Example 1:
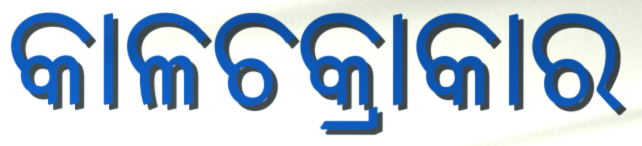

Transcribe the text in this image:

କାଳଚକ୍ରାକାର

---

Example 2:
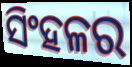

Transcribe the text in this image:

ସିଂହଳର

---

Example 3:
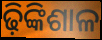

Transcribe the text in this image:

ଢ଼ିଙ୍କିଶାଳ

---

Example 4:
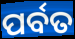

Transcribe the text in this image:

ପର୍ବତ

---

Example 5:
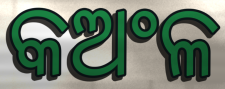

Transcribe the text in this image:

କଅଂଳ